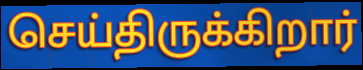
செய்திருக்கிறார்